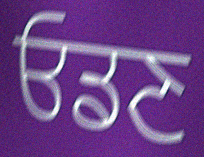
ਓਡਣ